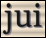
jui